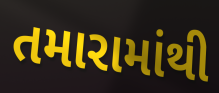
તમારામાંથી